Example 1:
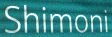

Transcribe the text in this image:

Shimoni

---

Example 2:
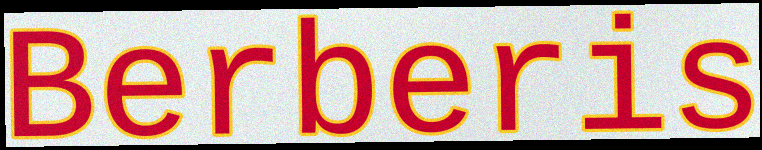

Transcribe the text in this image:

Berberis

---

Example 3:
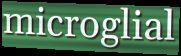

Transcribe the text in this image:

microglial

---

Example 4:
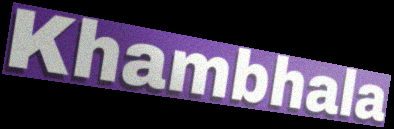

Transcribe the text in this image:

Khambhala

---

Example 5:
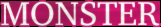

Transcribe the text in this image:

MONSTER